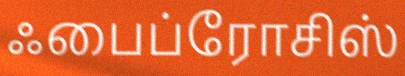
ஃபைப்ரோசிஸ்